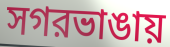
সগরভাঙায়